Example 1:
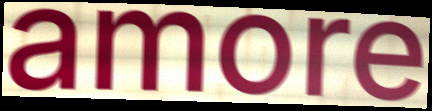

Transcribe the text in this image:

amore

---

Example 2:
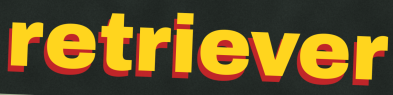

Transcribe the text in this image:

retriever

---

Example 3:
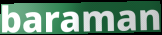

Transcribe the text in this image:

baraman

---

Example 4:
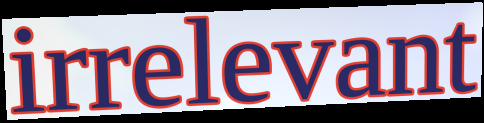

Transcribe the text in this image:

irrelevant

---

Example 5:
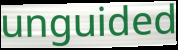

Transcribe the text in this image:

unguided